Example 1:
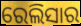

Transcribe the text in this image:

ରେଲିସାର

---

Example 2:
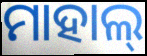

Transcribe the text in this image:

ମାହାଲ୍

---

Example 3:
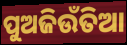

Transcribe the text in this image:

ପୁଅଜିଉଁତିଆ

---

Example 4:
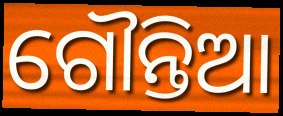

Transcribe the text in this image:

ଗୌନ୍ତିଆ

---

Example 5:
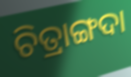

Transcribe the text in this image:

ଚିତ୍ରାଙ୍ଗଦା